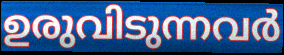
ഉരുവിടുന്നവർ